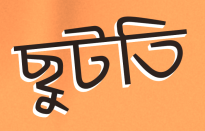
ছুটতি